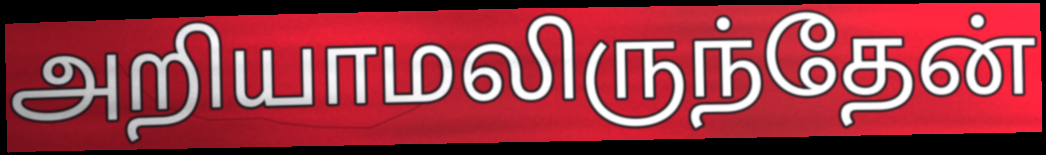
அறியாமலிருந்தேன்